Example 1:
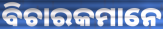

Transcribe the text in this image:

ବିଚାରକମାନେ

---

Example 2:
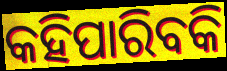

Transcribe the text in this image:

କହିପାରିବକି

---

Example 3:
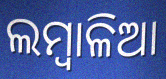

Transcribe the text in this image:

ଲମ୍ବାଳିଆ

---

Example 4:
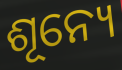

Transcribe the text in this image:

ଶୂନ୍ୟେ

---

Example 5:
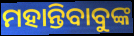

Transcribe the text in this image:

ମହାନ୍ତିବାବୁଙ୍କ